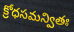
క్రోధసమన్వితః